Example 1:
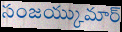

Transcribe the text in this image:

సంజయ్కుమార్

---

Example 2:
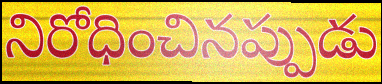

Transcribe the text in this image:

నిరోధించినప్పుడు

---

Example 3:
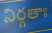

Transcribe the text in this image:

నిర్గతాః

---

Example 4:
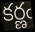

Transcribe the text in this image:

కర్ణఁ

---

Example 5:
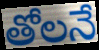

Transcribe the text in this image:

తోలనే